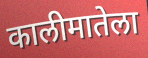
कालीमातेला